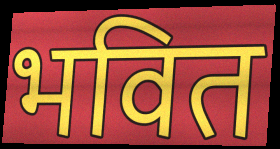
भवित